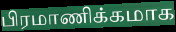
பிரமாணிக்கமாக